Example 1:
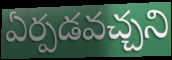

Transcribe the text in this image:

ఏర్పడవచ్చని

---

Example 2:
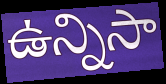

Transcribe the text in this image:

ఉన్నిసా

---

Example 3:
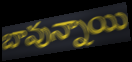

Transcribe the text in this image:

బావున్నాయి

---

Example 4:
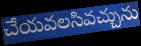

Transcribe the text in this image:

చేయవలసివచ్చును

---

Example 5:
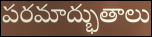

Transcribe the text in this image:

పరమాద్భుతాలు